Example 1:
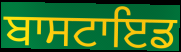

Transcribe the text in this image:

ਬਾਸਟਾਇਡ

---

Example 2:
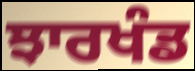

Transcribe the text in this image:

ਝਾਰਖੰਡ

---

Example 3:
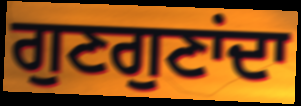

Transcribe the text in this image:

ਗੁਣਗੁਣਾਂਦਾ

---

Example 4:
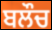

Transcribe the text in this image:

ਬਲੌਚ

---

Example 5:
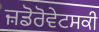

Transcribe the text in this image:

ਜ਼ਡੋਰੋਵੇਟਸਕੀ